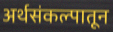
अर्थसंकल्पातून